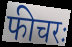
फीचरः